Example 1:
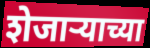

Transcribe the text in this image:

शेजाऱ्याच्या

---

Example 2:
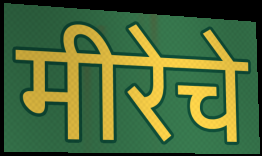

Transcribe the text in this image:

मीरेचे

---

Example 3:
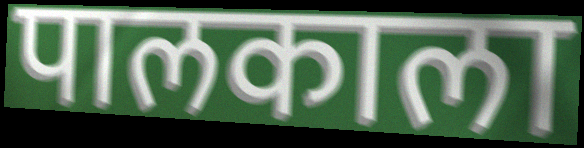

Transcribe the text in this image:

पालकाला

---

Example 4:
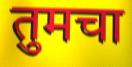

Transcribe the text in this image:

तुमचा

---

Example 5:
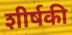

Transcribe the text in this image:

शीर्षकी